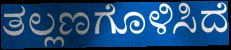
ತಲ್ಲಣಗೊಳಿಸಿದೆ